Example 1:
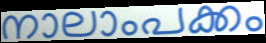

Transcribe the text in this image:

നാലാംപക്കം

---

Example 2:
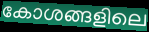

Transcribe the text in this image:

കോശങ്ങളിലെ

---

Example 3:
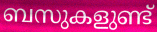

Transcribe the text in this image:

ബസുകളുണ്ട്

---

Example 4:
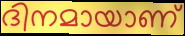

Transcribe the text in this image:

ദിനമായാണ്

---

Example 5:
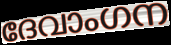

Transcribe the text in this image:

ദേവാംഗന